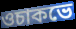
ওচাকভে